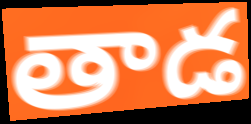
తాడ